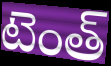
టెంత్